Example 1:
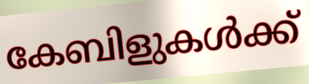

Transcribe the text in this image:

കേബിളുകൾക്ക്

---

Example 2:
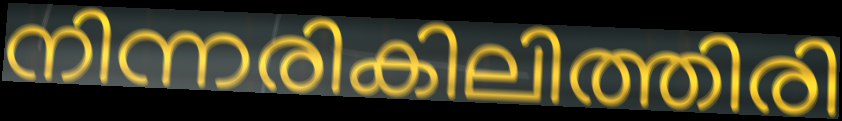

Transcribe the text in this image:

നിന്നരികിലിത്തിരി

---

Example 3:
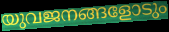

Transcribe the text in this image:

യുവജനങ്ങളോടും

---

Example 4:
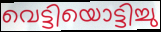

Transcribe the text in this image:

വെട്ടിയൊട്ടിച്ചു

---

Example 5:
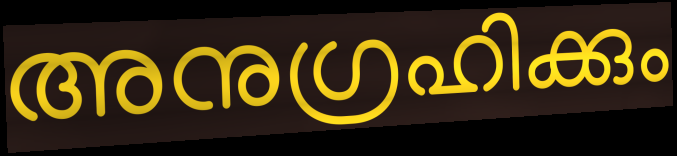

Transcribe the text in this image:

അനുഗ്രഹിക്കും